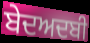
ਬੇਦਅਦਬੀ